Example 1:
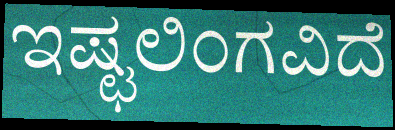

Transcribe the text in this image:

ಇಷ್ಟಲಿಂಗವಿದೆ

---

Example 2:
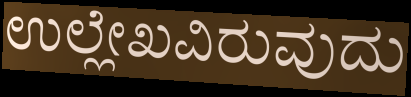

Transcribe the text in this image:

ಉಲ್ಲೇಖವಿರುವುದು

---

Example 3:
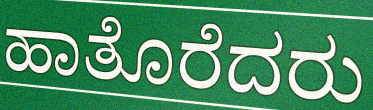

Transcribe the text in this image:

ಹಾತೊರೆದರು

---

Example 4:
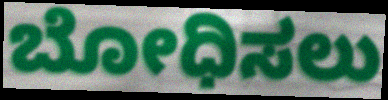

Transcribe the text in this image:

ಬೋಧಿಸಲು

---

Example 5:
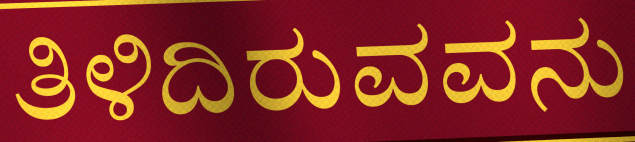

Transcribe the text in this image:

ತಿಳಿದಿರುವವನು